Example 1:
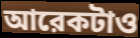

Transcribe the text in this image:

আরেকটাও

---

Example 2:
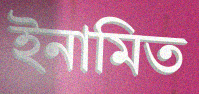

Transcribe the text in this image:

ইনামিত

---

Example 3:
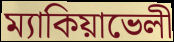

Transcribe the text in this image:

ম্যাকিয়াভেলী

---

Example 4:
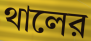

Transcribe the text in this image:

থালের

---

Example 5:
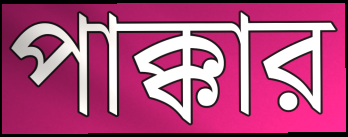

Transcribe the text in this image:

পাক্কার